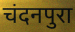
चंदनपुरा